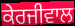
ਕੇਰਜੀਵਾਲ